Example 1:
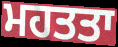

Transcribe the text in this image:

ਮਹਤਤਾ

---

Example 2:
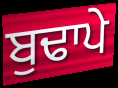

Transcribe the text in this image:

ਬੁਢਾਪੇ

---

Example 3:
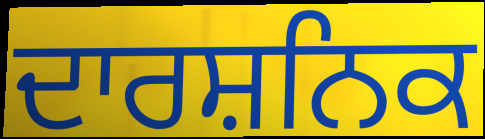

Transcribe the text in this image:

ਦਾਰਸ਼ਨਿਕ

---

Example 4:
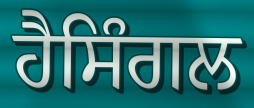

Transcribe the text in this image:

ਹੈਸਿੰਗਲ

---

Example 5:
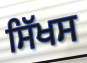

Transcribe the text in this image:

ਸਿੱਖਸ